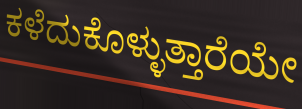
ಕಳೆದುಕೊಳ್ಳುತ್ತಾರೆಯೇ